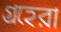
গ্রহেরা